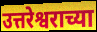
उत्तरेश्वराच्या